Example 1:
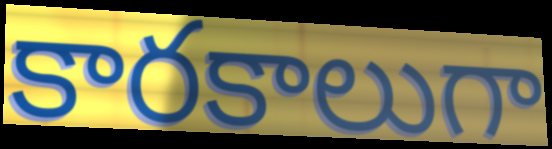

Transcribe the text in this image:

కారకాలుగా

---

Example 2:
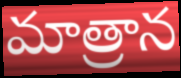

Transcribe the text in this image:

మాత్రాన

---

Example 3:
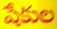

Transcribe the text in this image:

షేకుల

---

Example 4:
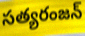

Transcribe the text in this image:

సత్యరంజన్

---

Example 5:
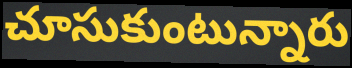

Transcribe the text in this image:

చూసుకుంటున్నారు